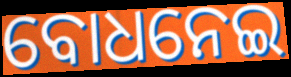
ବୋଧନେଇ